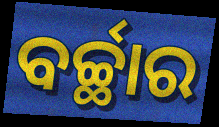
ବର୍ଚ୍ଛାର